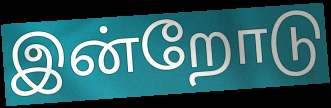
இன்றோடு